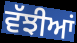
ਵੱਝੀਆਂ